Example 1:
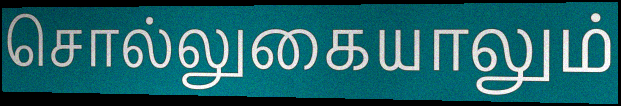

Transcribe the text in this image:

சொல்லுகையாலும்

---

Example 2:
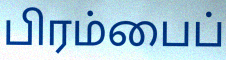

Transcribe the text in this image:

பிரம்பைப்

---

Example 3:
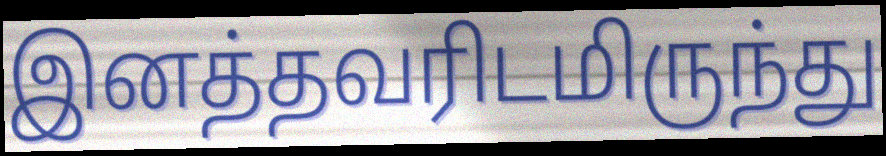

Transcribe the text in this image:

இனத்தவரிடமிருந்து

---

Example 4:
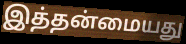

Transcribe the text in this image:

இத்தன்மையது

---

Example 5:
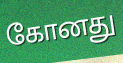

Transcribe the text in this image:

கோனது